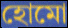
হোমো